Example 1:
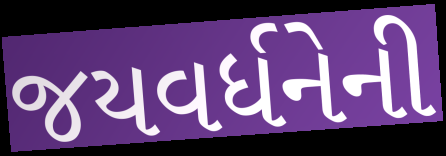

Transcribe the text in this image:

જયવર્ધનેની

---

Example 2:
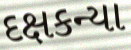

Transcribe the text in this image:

દક્ષકન્યા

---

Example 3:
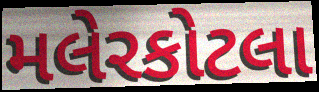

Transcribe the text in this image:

મલેરકોટલા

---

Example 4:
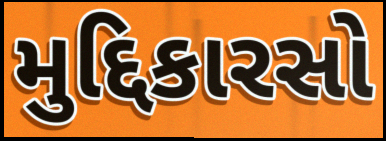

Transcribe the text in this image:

મુદ્દિકારસો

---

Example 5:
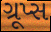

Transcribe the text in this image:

ગ્રૂપ્સ